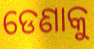
ଡେଣାକୁ